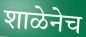
शाळेनेच